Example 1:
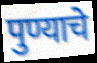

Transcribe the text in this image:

पुण्याचे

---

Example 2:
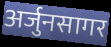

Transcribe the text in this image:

अर्जुनसागर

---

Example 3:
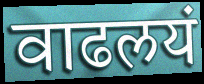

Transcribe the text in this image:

वाढलयं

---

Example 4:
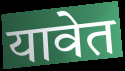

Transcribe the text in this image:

यावेत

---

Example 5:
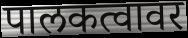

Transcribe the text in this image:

पालकत्वावर